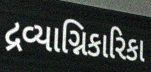
દ્રવ્યાગ્નિકારિકા